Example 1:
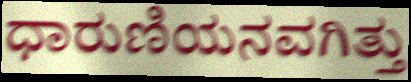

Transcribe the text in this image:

ಧಾರುಣಿಯನವಗಿತ್ತು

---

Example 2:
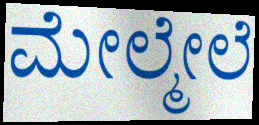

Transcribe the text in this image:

ಮೇಲ್ಮೇಲೆ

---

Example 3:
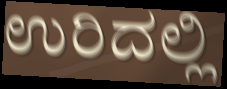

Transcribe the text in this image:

ಉರಿದಲ್ಲಿ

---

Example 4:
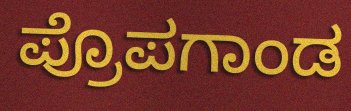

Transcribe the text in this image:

ಪ್ರೊಪಗಾಂಡ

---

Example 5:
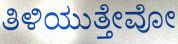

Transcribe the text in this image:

ತಿಳಿಯುತ್ತೇವೋ